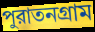
পুরাতনগ্রাম